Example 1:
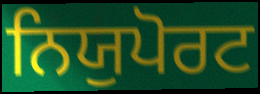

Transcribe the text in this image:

ਨਿਯੁਪੋਰਟ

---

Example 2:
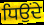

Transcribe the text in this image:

ਧਿਉਂਦੇ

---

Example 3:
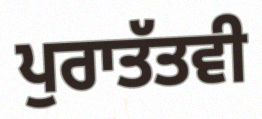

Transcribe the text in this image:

ਪੁਰਾਤੱਤਵੀ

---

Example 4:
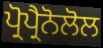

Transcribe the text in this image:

ਪ੍ਰੋਪ੍ਰੈਨੋਲੋਲ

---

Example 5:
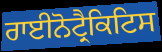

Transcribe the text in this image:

ਰਾਈਨੋਟ੍ਰੈਕਿਟਿਸ